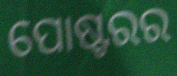
ପୋଷ୍ଟରର